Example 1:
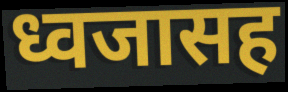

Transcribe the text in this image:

ध्वजासह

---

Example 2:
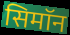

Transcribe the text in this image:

सिमॉन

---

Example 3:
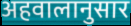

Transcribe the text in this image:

अहवालानुसार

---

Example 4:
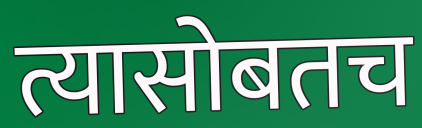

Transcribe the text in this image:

त्यासोबतच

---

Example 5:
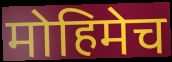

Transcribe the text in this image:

मोहिमेच